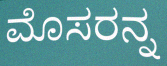
ಮೊಸರನ್ನ